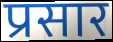
प्रसार